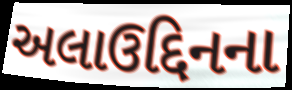
અલાઉદ્દિનના